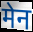
मेन